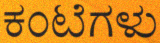
ಕಂಟೆಗಳು